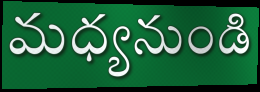
మధ్యనుండి